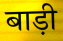
बाड़ी